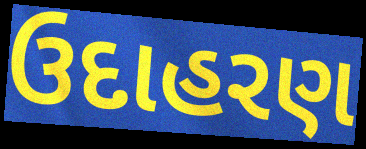
ઉદાહરણ